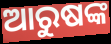
ଆରୁଷଙ୍କ